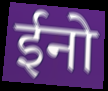
ईनो